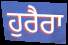
ਹੁਰੈਰਾ